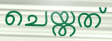
ചെയ്തത്